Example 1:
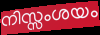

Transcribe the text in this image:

നിസ്സംശയം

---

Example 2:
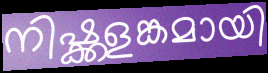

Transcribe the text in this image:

നിഷ്ക്കളങ്കമായി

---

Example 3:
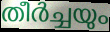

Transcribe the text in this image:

തീർച്ചയും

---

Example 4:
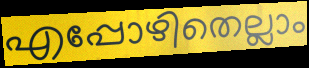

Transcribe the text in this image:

എപ്പോഴിതെല്ലാം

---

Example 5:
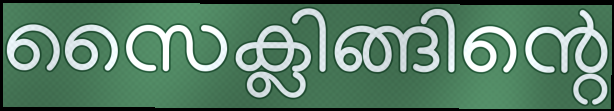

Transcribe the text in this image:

സൈക്ലിങ്ങിന്റെ